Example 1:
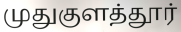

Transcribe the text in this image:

முதுகுளத்தூர்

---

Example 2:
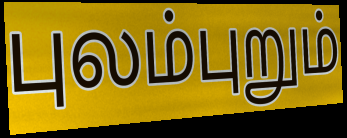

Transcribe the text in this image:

புலம்புறும்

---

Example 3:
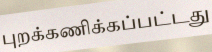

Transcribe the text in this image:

புறக்கணிக்கப்பட்டது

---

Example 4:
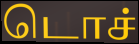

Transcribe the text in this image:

டொச்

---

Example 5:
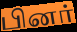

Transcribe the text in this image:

பினர்